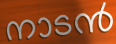
നാടൻ